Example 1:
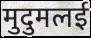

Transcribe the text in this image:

मुदुमलई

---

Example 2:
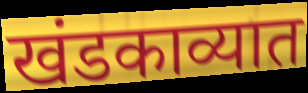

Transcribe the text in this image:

खंडकाव्यात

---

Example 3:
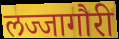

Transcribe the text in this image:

लज्जागौरी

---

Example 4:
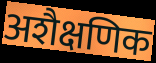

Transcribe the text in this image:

अशैक्षणिक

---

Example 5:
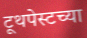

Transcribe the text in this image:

टूथपेस्टच्या